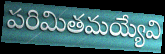
పరిమితమయ్యేవి